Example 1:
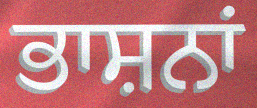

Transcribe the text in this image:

ਭਾਸ਼ਨਾਂ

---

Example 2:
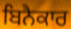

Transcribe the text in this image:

ਬਿਨੈਕਾਰ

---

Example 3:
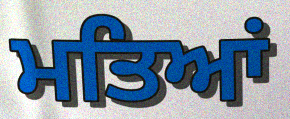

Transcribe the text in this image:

ਮਤਿਆਂ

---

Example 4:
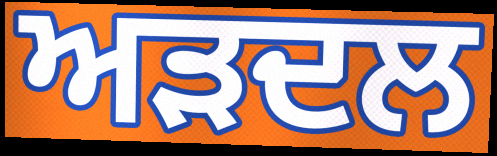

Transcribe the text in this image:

ਅੜਦਲ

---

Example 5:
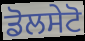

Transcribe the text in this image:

ਡੋਲਸੇਟੋ